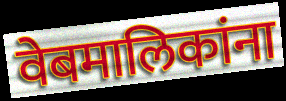
वेबमालिकांना